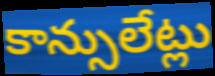
కాన్సులేట్లు